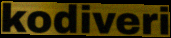
kodiveri